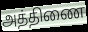
அத்திணை